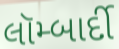
લૉમ્બાર્દી